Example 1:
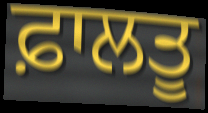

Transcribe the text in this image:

ਫ਼ਾਲਤੂ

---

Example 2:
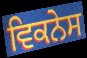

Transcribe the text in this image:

ਵਿਕਨੇਸ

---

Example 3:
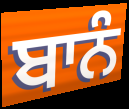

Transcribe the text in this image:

ਬਾਨੰ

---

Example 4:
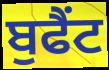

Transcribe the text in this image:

ਬੁਫੈਂਟ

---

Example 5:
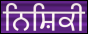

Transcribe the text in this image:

ਨਿਸ਼ਿਕੀ